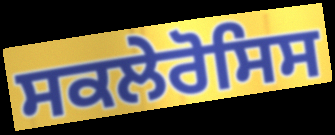
ਸਕਲੇਰੋਸਿਸ